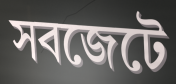
সবজেটে